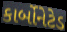
કાર્બોનેટેડ